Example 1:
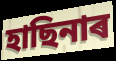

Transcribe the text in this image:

হাছিনাৰ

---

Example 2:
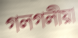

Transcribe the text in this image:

গলগলীয়া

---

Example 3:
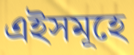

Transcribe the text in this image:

এইসমূহে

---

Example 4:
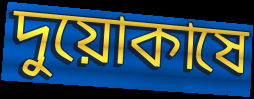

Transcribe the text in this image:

দুয়োকাষে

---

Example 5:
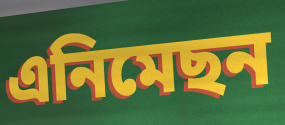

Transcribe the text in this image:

এনিমেছন